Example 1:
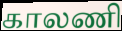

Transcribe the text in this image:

காலணி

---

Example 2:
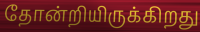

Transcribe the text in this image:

தோன்றியிருக்கிறது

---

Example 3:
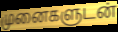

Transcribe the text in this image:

முனைகளுடன்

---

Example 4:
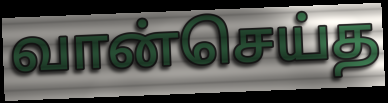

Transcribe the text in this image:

வான்செய்த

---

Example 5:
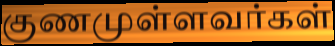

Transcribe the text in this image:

குணமுள்ளவர்கள்